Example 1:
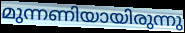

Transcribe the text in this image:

മുന്നണിയായിരുന്നു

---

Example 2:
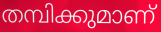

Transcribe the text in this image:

തമ്പിക്കുമാണ്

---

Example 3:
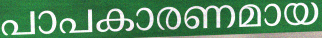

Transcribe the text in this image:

പാപകാരണമായ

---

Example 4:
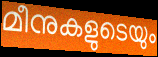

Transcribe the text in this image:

മീനുകളുടെയും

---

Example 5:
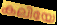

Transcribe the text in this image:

കലിയേ